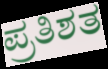
ಪ್ರತಿಶತ